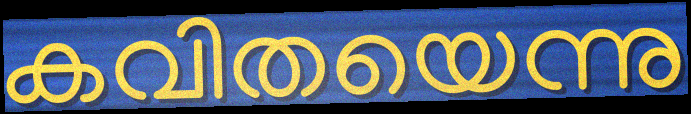
കവിതയെന്നു